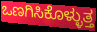
ಒಣಗಿಸಿಕೊಳ್ಳುತ್ತ